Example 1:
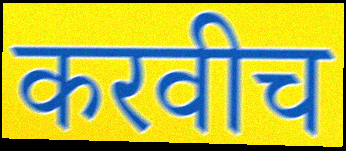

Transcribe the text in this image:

करवीच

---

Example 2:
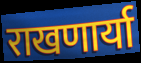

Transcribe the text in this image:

राखणार्या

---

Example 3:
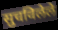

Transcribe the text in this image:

सुचविलेले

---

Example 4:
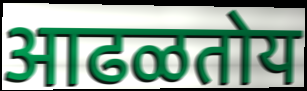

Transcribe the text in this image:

आढळतोय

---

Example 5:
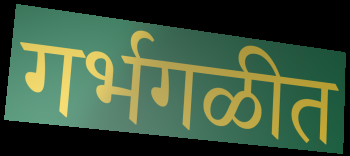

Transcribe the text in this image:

गर्भगळीत